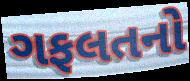
ગફલતનો